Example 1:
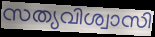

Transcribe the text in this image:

സത്യവിശ്വാസി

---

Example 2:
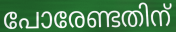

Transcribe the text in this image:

പോരേണ്ടതിന്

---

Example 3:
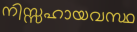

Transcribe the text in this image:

നിസ്സഹായവസ്ഥ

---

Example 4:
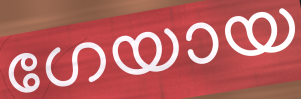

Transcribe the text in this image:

ഗേയായ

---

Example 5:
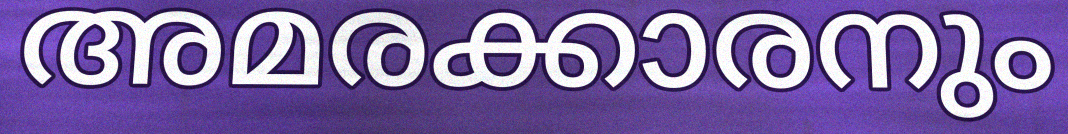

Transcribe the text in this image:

അമരക്കാരനും